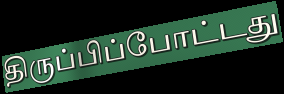
திருப்பிப்போட்டது